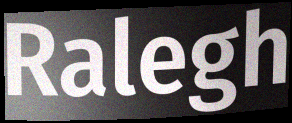
Ralegh